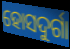
ହୋସଦୁର୍ଗା